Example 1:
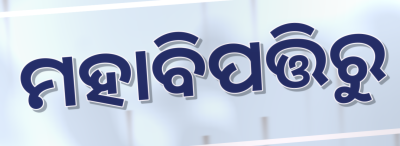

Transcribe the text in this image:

ମହାବିପତ୍ତିରୁ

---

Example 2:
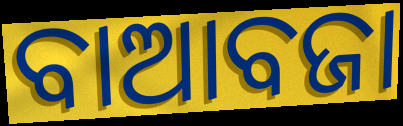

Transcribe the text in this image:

ବାଆବଜା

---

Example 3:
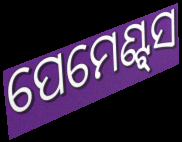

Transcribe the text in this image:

ପେମେଣ୍ଟ୍‌ସ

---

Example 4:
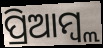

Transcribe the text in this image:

ପ୍ରିଆମ୍ବ୍ଲ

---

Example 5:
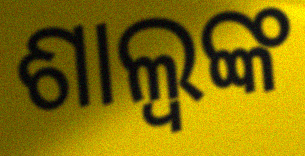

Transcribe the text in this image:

ଶାଲ୍ୱଙ୍କ